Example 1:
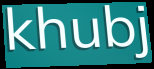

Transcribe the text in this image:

khubj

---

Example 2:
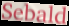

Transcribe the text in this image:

Sebald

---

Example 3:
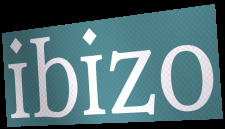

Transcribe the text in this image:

ibizo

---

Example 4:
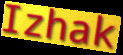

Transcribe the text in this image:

Izhak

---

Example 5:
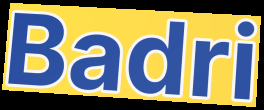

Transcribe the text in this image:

Badri